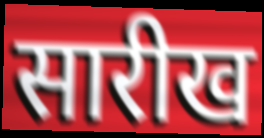
सारीख